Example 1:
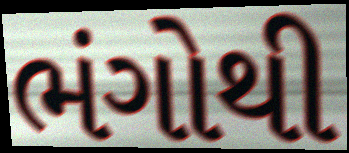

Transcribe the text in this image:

ભંગોથી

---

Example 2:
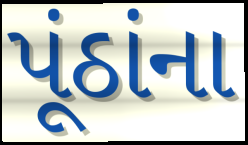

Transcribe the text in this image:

પૂંઠાંના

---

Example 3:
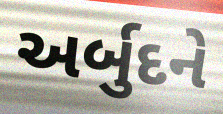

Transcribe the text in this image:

અર્બુદને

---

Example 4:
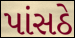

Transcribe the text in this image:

પાંસઠે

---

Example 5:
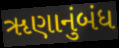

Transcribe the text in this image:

ૠણાનુંબંધ